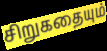
சிறுகதையும்